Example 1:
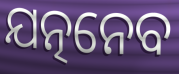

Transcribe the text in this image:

ଯତ୍ନନେବ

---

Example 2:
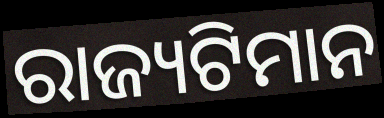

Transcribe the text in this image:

ରାଜ୍ୟଟିମାନ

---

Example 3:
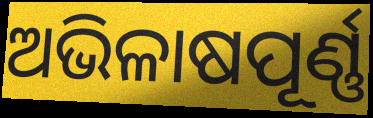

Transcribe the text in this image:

ଅଭିଳାଷପୂର୍ଣ୍ଣ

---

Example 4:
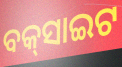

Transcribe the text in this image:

ବକ୍‌ସାଇଟ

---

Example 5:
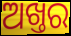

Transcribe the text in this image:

ଅଖ୍ତର